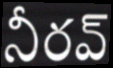
నీరవ్